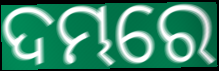
ଦମ୍ଭରେ